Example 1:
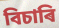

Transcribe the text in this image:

বিচাৰি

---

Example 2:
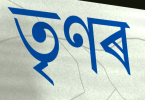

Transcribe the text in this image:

তৃণৰ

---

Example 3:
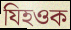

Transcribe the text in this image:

যিহওক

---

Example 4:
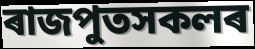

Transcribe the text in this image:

ৰাজপুতসকলৰ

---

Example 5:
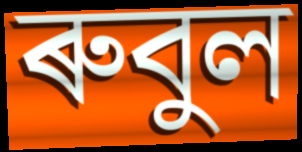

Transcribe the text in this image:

ৰুবুল